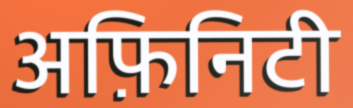
अफ़िनिटी